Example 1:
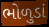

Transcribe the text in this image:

ભોળુડાં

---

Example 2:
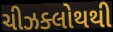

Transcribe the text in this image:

ચીઝક્લોથથી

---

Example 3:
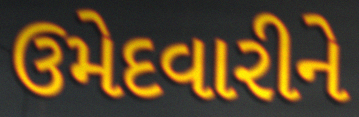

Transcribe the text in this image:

ઉમેદવારીને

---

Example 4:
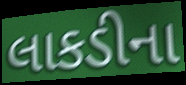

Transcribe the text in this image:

લાકડીના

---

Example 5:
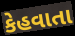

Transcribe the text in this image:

કેહવાતા